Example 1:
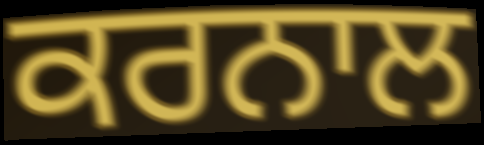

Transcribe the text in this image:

ਕਰਨਾਲ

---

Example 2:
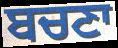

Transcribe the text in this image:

ਬਚਣਾ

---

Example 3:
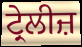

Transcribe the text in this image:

ਟ੍ਰੇਲੀਜ਼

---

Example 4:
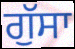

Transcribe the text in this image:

ਗੁੱਸਾ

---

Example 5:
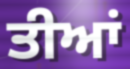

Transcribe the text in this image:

ਤੀਆਂ